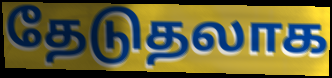
தேடுதலாக